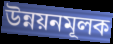
উন্নয়নমূলক